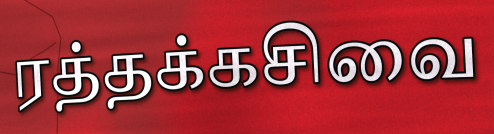
ரத்தக்கசிவை